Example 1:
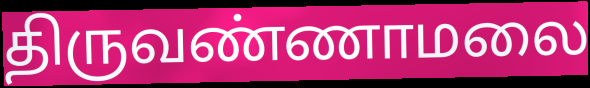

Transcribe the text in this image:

திருவண்ணாமலை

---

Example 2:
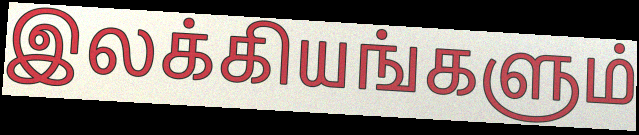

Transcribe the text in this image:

இலக்கியங்களும்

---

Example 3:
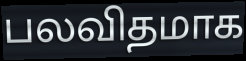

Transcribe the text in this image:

பலவிதமாக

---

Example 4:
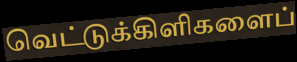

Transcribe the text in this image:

வெட்டுக்கிளிகளைப்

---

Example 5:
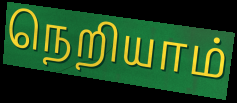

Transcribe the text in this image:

நெறியாம்